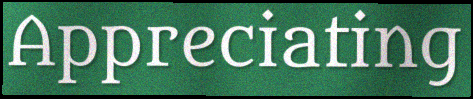
Appreciating